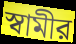
স্বামীর